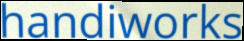
handiworks